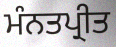
ਮੰਨਤਪ੍ਰੀਤ